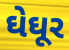
ઘેઘૂર